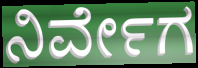
ನಿರ್ವೇಗ